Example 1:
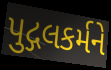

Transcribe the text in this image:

પુદ્ગલકર્મને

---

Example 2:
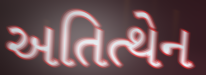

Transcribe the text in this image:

અતિત્થેન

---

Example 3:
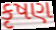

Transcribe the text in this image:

કૃષણ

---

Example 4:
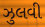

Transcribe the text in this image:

ઝુલવી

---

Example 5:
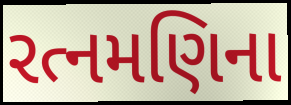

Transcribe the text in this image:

રત્નમણિના